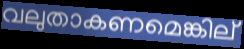
വലുതാകണമെങ്കില്